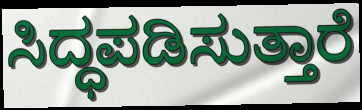
ಸಿದ್ಧಪಡಿಸುತ್ತಾರೆ